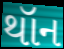
થૉન